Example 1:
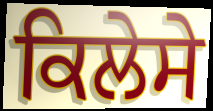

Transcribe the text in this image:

ਕਿਲੇਸੇ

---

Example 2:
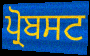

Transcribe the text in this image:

ਪ੍ਰੋਬਸਟ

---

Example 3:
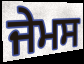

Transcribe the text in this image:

ਜੇਮਸ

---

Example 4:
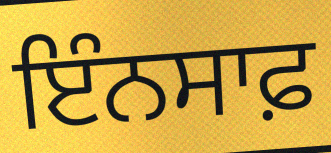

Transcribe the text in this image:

ਇੰਨਸਾਫ਼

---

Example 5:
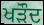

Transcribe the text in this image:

ਖੜੌਦ